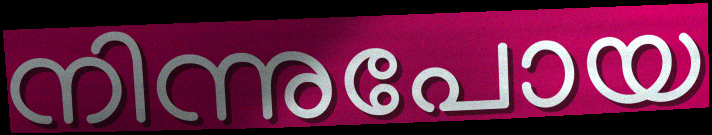
നിന്നുപോയ